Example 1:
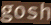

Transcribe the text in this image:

gosh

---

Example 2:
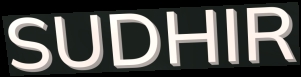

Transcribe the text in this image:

SUDHIR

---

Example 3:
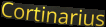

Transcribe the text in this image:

Cortinarius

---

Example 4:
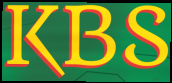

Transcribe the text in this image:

KBS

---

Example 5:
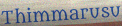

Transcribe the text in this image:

Thimmarusu